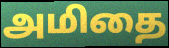
அமிதை